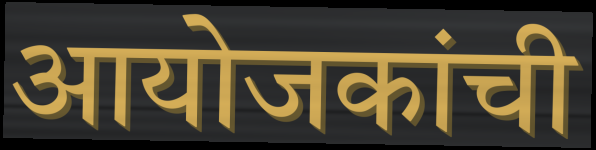
आयोजकांची